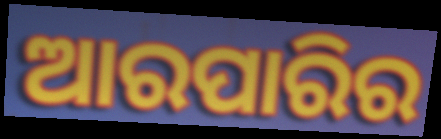
ଆରପାରିର